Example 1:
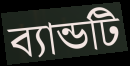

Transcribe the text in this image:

ব্যান্ডটি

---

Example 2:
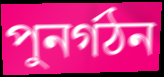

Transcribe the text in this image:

পুনর্গঠন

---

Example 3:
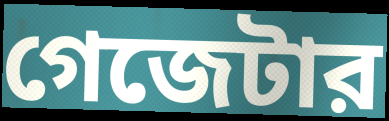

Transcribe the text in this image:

গেজেটার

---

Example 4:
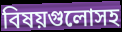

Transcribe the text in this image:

বিষয়গুলোসহ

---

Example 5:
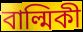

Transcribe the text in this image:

বাল্মিকী